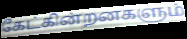
கேட்கின்றனகளும்